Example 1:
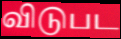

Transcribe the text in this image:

விடுபட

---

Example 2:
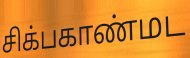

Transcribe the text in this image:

சிக்பகாண்மட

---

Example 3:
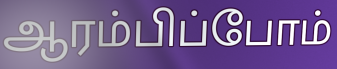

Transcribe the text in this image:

ஆரம்பிப்போம்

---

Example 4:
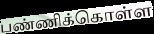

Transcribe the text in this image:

பண்ணிக்கொள்ள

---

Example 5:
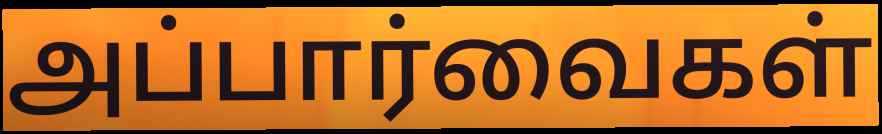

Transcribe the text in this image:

அப்பார்வைகள்